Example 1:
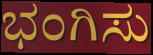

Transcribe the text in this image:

ಭಂಗಿಸು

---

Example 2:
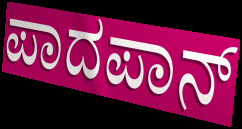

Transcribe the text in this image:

ಪಾದಪಾನ್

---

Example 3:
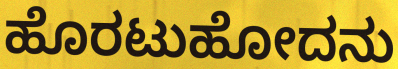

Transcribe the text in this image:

ಹೊರಟುಹೋದನು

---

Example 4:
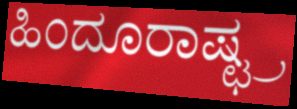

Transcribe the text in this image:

ಹಿಂದೂರಾಷ್ಟ್ರ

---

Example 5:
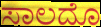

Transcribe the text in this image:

ಸಾಲದೊ